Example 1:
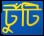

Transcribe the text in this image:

টুঁটি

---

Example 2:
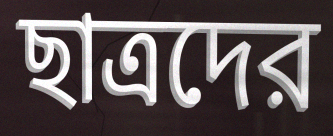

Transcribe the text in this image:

ছাত্রদের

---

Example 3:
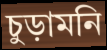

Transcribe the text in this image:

চুড়ামনি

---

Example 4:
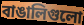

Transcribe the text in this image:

বাঙালিগুলো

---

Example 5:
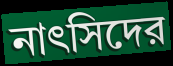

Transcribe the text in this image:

নাৎসিদের